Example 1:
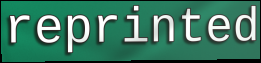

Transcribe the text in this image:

reprinted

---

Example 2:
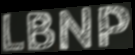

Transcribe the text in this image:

LBNP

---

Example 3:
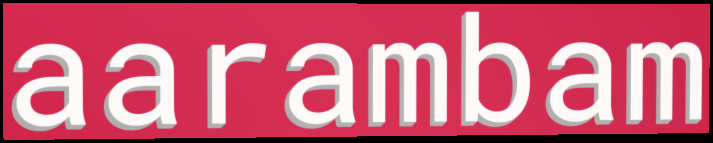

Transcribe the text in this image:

aarambam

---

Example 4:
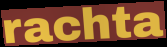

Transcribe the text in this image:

rachta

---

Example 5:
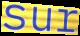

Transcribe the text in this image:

sur